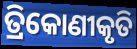
ତ୍ରିକୋଣୀକୃତି